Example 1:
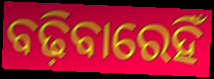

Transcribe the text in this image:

ବଢ଼ିବାରେହିଁ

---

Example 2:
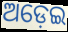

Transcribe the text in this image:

ଅଡ଼େଇ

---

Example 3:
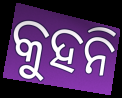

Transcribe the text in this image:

କୁହନି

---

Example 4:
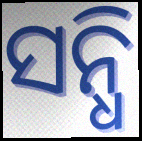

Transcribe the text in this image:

ସନ୍ଧି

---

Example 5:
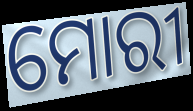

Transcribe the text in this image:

ମୋରୀ